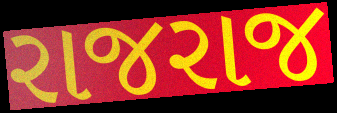
રાજરાજ